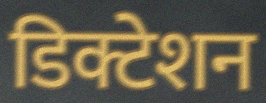
डिक्टेशन